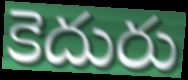
కెదురు